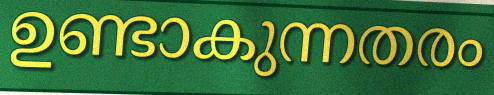
ഉണ്ടാകുന്നതരം